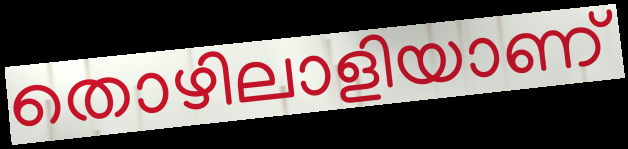
തൊഴിലാളിയാണ്